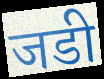
जडी